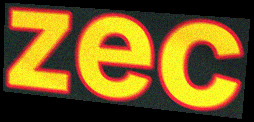
zec